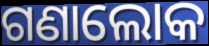
ଗଣାଲୋକ